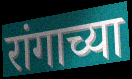
रांगाच्या